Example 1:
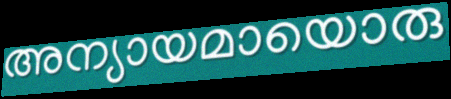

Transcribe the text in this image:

അന്യായമായൊരു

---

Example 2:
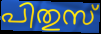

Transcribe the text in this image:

പിതുസ്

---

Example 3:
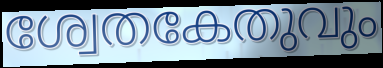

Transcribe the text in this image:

ശ്വേതകേതുവും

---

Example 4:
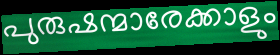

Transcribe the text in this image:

പുരുഷന്മാരേക്കാളും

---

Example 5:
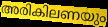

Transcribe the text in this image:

അരികിലണയും